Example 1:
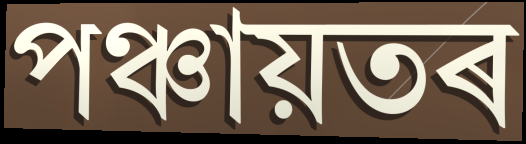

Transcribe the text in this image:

পঞ্চায়তৰ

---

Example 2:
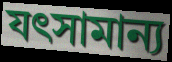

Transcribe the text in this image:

যৎসামান্য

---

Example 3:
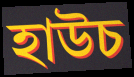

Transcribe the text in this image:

হাউচ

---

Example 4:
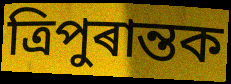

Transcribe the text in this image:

ত্ৰিপুৰান্তক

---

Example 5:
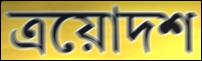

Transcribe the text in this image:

ত্ৰয়োদশ